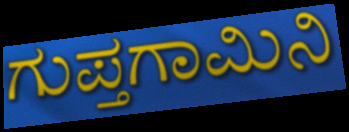
ಗುಪ್ತಗಾಮಿನಿ